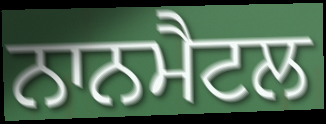
ਨਾਨਮੈਟਲ